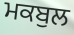
ਮਕਬੁਲ